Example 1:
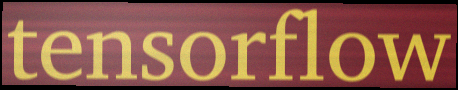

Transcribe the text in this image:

tensorflow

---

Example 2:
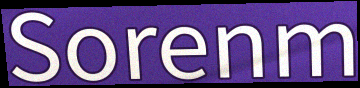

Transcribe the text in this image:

Sorenm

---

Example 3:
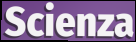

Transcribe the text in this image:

Scienza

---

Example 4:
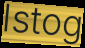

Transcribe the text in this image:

Istog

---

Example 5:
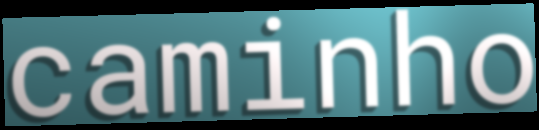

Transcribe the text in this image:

caminho